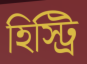
হিস্ট্রি